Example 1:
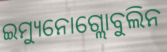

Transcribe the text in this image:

ଇମ୍ୟୁନୋଗ୍ଲୋବୁଲିନ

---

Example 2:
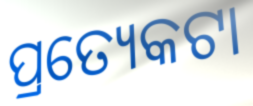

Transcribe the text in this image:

ପ୍ରତ୍ୟେକଟା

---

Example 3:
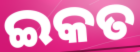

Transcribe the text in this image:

ଇକତ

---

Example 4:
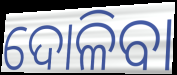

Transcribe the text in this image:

ଦୋଳିବା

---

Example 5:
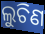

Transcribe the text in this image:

ଲୁଚିଣ